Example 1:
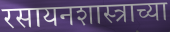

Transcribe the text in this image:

रसायनशास्त्राच्या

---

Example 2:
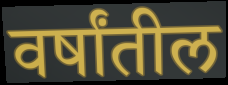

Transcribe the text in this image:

वर्षांतील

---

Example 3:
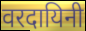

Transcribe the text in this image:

वरदायिनी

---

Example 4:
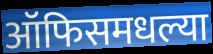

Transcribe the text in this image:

ऑफिसमधल्या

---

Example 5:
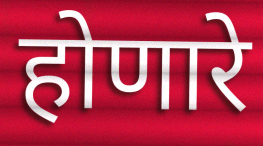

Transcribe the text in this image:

होणारे